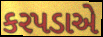
કરપડાએ